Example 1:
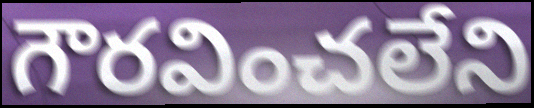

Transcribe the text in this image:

గౌరవించలేని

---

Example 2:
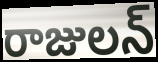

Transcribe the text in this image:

రాజులన్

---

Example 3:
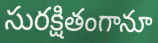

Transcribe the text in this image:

సురక్షితంగానూ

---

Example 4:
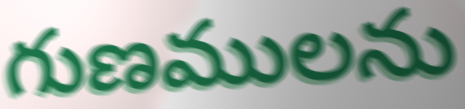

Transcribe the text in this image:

గుణములను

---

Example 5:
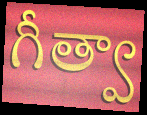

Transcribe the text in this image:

గీత్వా